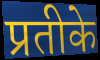
प्रतीके